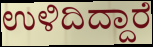
ಉಳಿದಿದ್ದಾರೆ